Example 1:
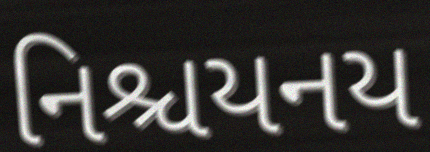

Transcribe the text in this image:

નિશ્ચયનય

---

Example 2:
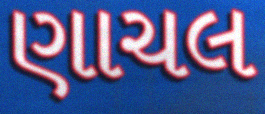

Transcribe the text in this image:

ણાચલ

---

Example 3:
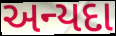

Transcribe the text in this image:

અન્યદા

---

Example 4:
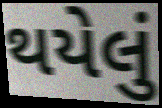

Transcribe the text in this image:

થયેલું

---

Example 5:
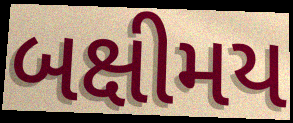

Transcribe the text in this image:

બક્ષીમય